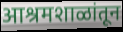
आश्रमशाळांतून